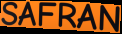
SAFRAN